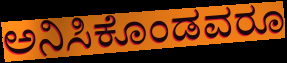
ಅನಿಸಿಕೊಂಡವರೂ